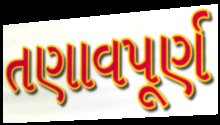
તણાવપૂર્ણ